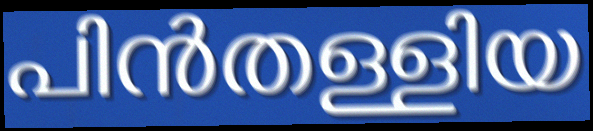
പിൻതള്ളിയ